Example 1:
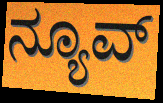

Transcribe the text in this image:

ನ್ಯೂವ್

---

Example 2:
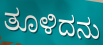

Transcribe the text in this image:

ತೂಳಿದನು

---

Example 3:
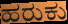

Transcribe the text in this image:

ಹರುಕು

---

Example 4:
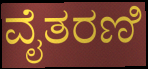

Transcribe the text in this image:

ವೈತರಣಿ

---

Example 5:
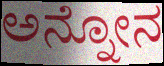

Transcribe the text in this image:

ಅನ್ನೋನ